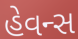
હેવન્સ